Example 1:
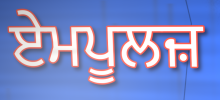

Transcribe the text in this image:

ਏਮਪੂਲਜ਼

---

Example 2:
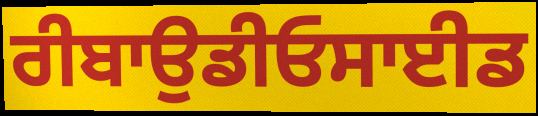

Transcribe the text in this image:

ਰੀਬਾਉਡੀਓਸਾਈਡ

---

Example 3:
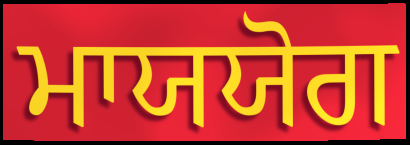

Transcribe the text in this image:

ਮਾਯਯੋਗ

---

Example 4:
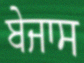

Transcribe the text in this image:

ਬੇਜਾਸ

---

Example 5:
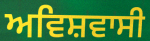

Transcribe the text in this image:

ਅਵਿਸ਼ਵਾਸੀ